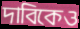
দাবিকেও